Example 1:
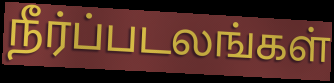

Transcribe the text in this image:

நீர்ப்படலங்கள்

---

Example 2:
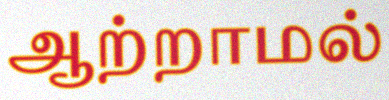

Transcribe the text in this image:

ஆற்றாமல்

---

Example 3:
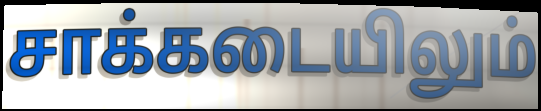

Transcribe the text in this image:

சாக்கடையிலும்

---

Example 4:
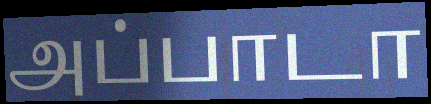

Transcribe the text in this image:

அப்பாடா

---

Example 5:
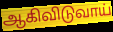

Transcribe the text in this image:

ஆகிவிடுவாய்